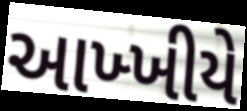
આખ્ખીયે